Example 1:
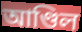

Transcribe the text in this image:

আণ্ডিল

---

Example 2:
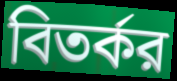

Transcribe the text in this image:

বিতর্কর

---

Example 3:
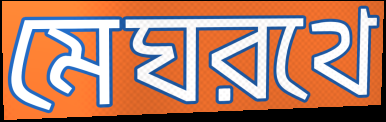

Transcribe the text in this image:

মেঘরথে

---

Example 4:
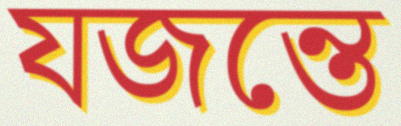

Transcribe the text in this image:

যজন্তে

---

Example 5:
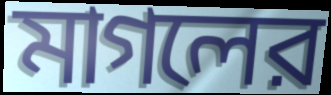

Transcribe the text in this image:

মাগলের